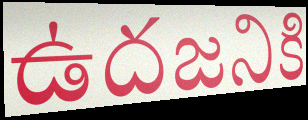
ఉదజనికి